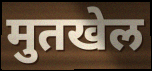
मुतखेल